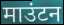
माउंटन